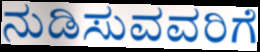
ನುಡಿಸುವವರಿಗೆ